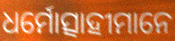
ଧର୍ମୋତ୍ସାହୀମାନେ